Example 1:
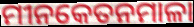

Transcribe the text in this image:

ମୀନକେତନମାଳା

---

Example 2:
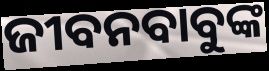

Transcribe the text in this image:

ଜୀବନବାବୁଙ୍କ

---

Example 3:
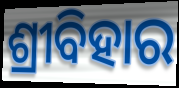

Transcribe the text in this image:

ଶ୍ରୀବିହାର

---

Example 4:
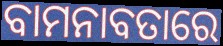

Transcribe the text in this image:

ବାମନାବତାରେ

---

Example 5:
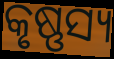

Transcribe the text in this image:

କୃଷ୍ଣସ୍ୟ